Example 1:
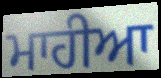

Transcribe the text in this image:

ਮਾਹੀਆ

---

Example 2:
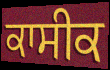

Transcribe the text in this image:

ਕਾਸੀਕ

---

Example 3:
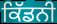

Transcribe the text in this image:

ਕਿੱਡਨੀ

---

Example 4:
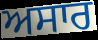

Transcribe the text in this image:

ਅਸਾਰ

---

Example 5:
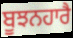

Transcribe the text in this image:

ਬੂਝਨਹਾਰੈ